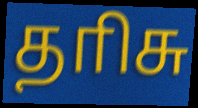
தரிசு